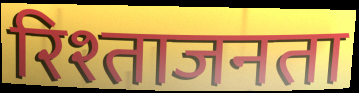
रिश्ताजनता